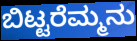
ಬಿಟ್ಟರೆಮ್ಮನು